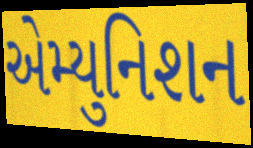
એમ્યુનિશન